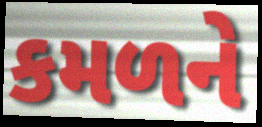
કમળને